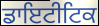
ਡਾਇਟੀਟਿਕ